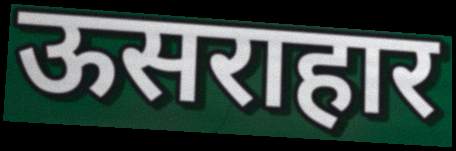
ऊसराहार